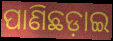
ପାଣିଛଡ଼ାଇ